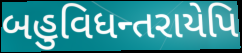
બહુવિધન્તરાયેપિ